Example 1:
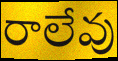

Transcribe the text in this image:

రాలేవు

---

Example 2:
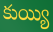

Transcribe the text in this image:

కుయ్యి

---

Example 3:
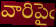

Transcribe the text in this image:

వారిపైఁ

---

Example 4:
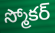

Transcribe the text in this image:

స్మోకర్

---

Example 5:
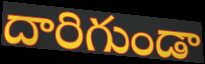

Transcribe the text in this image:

దారిగుండా